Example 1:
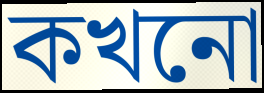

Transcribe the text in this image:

কখনো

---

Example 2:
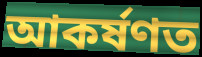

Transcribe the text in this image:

আকৰ্ষণত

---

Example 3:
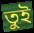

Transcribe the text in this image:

তুই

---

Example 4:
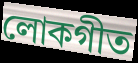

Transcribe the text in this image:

লোকগীত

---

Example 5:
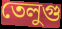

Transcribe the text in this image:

তেলুগু